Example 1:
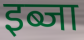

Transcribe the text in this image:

इब्जा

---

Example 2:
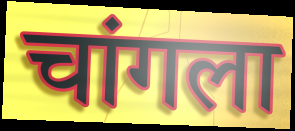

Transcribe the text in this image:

चांगला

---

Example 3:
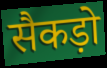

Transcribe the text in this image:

सैकड़ो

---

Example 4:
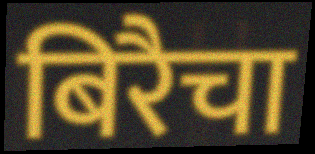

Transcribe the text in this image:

बिरैचा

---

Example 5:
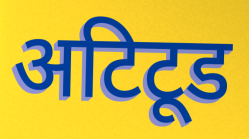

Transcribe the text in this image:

अटिटूड